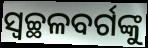
ସ୍ବଚ୍ଛଳବର୍ଗଙ୍କୁ